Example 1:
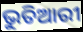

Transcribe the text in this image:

ଭୁତିଆରୀ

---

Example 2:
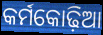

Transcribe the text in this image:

କର୍ମକୋଢ଼ିଆ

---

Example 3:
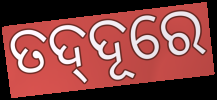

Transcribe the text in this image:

ତଦ୍‍ଦୂରେ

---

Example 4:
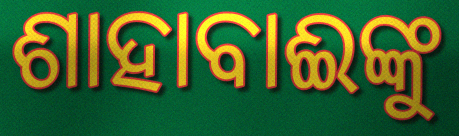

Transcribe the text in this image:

ଶାହାବାଈଙ୍କୁ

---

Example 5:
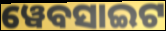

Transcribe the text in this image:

ୱେବସାଇଟ